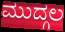
ಮುದ್ಗಲ